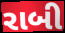
રાબી